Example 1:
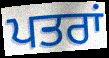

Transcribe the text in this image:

ਪਤਰਾਂ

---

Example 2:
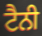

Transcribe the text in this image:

ਟੈਨੀ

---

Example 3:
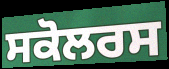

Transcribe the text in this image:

ਸਕੋਲਰਸ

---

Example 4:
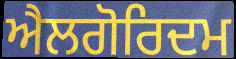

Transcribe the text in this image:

ਐਲਗੋਰਿਦਮ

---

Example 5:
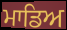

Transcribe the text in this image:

ਮਾਡਿਅ